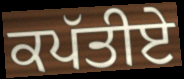
ਕਪੱਤੀਏ